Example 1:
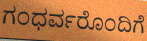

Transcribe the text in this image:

ಗಂಧರ್ವರೊಂದಿಗೆ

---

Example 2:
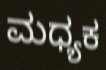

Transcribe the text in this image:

ಮಧ್ಯಕ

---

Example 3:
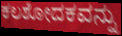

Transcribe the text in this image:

ಕಲಶೋದಕವನ್ನು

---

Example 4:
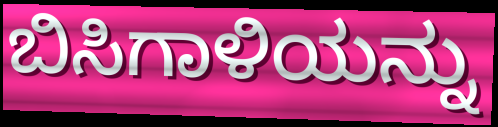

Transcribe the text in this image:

ಬಿಸಿಗಾಳಿಯನ್ನು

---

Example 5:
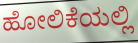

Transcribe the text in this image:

ಹೋಲಿಕೆಯಲ್ಲಿ